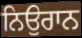
ਨਿਉਰਾਨ